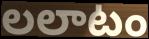
లలాటం